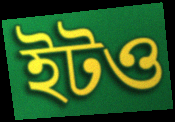
ইটও